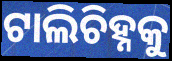
ଟାଲିଚିହ୍ନକୁ